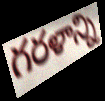
గరళాన్ని